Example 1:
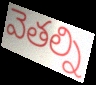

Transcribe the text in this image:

వెతల్ని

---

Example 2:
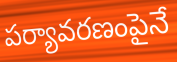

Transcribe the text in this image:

పర్యావరణంపైనే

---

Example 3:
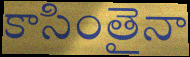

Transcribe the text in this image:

కాసింతైనా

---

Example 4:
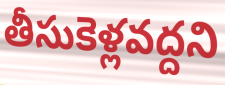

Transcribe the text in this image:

తీసుకెళ్లవద్దని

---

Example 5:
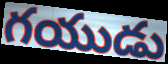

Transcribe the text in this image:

గయుడు